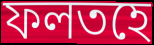
ফলতহে